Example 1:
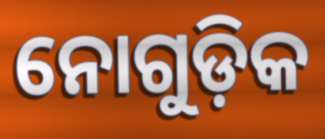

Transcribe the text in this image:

ନୋଗୁଡ଼ିକ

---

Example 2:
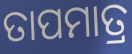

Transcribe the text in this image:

ତାପମାତ୍ର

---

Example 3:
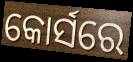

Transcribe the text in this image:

କୋର୍ସରେ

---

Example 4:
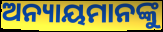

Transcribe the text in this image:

ଅନ୍ୟାୟମାନଙ୍କୁ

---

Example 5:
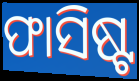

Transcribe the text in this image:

ଫାସିଷ୍ଟ